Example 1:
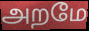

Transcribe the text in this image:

அறமே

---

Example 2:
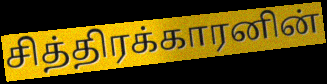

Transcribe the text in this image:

சித்திரக்காரனின்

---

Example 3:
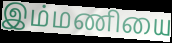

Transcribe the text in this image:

இம்மணியை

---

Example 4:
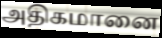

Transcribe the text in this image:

அதிகமானை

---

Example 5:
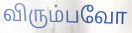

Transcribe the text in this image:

விரும்பவோ